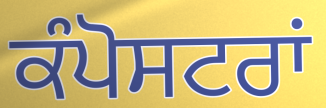
ਕੰਪੋਸਟਰਾਂ